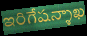
ఇరిగేషన్శాఖ